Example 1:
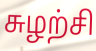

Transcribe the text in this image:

சுழற்சி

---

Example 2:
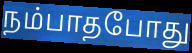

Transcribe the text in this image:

நம்பாதபோது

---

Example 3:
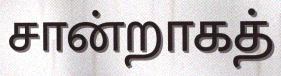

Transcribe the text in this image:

சான்றாகத்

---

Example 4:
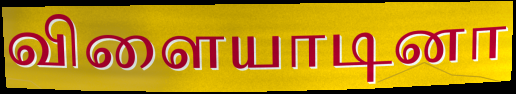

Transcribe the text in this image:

விளையாடினா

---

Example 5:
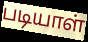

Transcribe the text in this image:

படியாள்